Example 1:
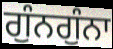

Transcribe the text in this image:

ਗੁੰਨਗੁੰਨਾ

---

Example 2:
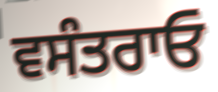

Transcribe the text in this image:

ਵਸੰਤਰਾਓ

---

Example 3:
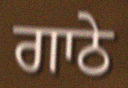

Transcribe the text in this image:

ਗਾਠੇ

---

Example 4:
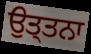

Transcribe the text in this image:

ਉਤ੍ਤਨਾ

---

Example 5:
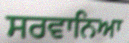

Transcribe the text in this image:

ਸਰਵਾਨਿਆ